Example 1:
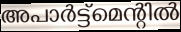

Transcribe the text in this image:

അപാർട്ട്മെന്റിൽ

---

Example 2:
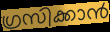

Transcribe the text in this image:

ഗ്രസിക്കാൻ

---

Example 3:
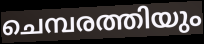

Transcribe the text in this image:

ചെമ്പരത്തിയും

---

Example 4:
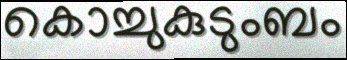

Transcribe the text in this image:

കൊച്ചുകുടുംബം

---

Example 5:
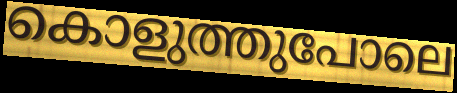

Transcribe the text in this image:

കൊളുത്തുപോലെ